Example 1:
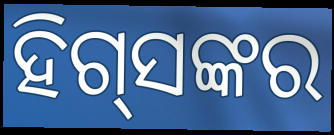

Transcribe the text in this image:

ହିଗ୍‌ସଙ୍କର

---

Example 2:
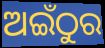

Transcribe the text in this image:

ଅଇଁଠୁର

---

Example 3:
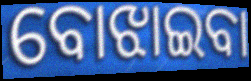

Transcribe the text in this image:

ବୋଝାଇବା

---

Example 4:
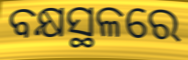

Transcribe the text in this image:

ବକ୍ଷସ୍ଥଳରେ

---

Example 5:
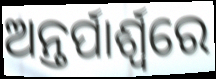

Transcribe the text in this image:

ଅନ୍ତର୍ପାର୍ଶ୍ୱରେ